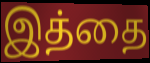
இத்தை